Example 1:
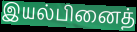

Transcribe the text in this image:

இயல்பினைத்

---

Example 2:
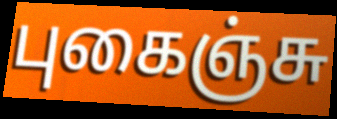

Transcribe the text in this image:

புகைஞ்சு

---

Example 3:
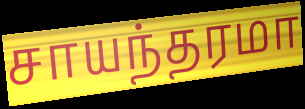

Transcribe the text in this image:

சாயந்தரமா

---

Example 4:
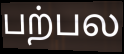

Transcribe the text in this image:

பற்பல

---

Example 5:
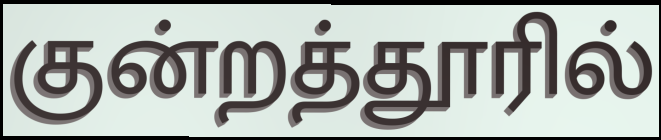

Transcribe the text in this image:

குன்றத்தூரில்